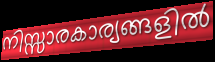
നിസ്സാരകാര്യങ്ങളിൽ